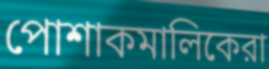
পোশাকমালিকেরা